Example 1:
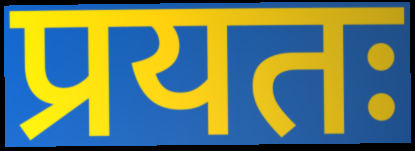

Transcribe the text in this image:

प्रयतः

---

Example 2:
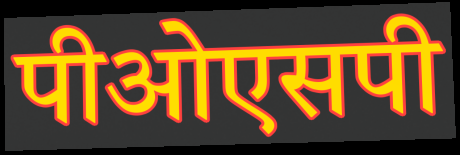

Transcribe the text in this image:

पीओएसपी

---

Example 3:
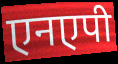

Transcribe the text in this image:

एनएपी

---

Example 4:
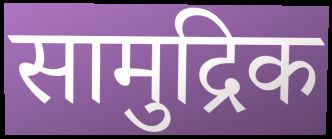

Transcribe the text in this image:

सामुद्रिक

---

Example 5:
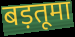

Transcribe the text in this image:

बड़तूमा